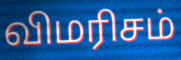
விமரிசம்